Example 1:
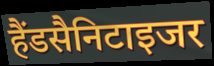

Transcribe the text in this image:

हैंडसैनिटाइजर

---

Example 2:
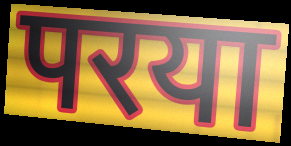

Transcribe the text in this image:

परया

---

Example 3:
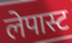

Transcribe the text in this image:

लेपास्ट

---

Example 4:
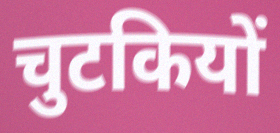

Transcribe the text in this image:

चुटकियों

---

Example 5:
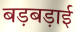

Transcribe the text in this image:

बड़बड़ाई